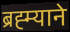
ब्रह्म्याने